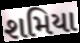
શમિયા